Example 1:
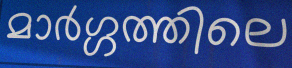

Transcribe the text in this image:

മാർഗ്ഗത്തിലെ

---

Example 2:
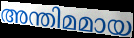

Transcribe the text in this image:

അന്തിമമായ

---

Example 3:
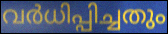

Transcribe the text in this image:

വർധിപ്പിച്ചതും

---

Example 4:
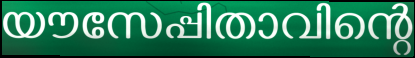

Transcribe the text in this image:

യൗസേപ്പിതാവിന്റെ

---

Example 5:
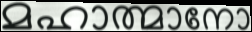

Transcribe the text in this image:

മഹാത്മാനോ